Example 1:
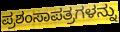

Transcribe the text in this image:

ಪ್ರಶಂಸಾಪತ್ರಗಳನ್ನು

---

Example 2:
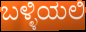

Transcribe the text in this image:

ಬಳ್ಳಿಯಲಿ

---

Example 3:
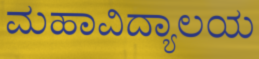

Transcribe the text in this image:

ಮಹಾವಿದ್ಯಾಲಯ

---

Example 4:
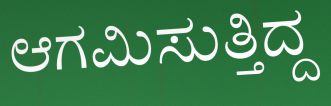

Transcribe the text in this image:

ಆಗಮಿಸುತ್ತಿದ್ದ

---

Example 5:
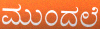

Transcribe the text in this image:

ಮುಂದಲೆ